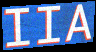
IIA